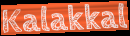
Kalakkal